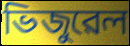
ভিজুৱেল